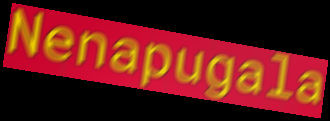
Nenapugala